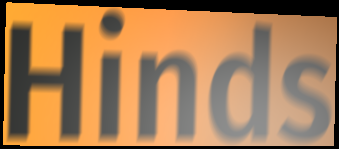
Hinds